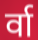
र्वा